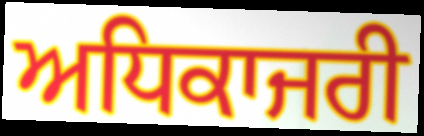
ਅਧਿਕਾਜਰੀ